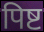
पिष्ट